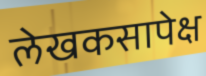
लेखकसापेक्ष